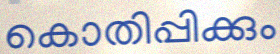
കൊതിപ്പിക്കും